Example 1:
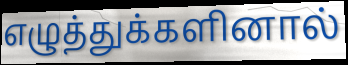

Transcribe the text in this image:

எழுத்துக்களினால்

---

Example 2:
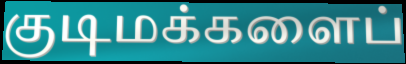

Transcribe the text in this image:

குடிமக்களைப்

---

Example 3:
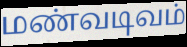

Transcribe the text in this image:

மண்வடிவம்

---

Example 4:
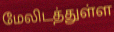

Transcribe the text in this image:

மேலிடத்துள்ள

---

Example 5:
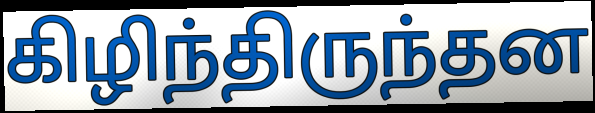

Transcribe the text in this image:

கிழிந்திருந்தன